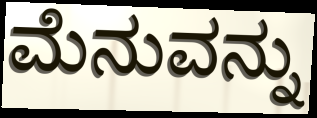
ಮೆನುವನ್ನು